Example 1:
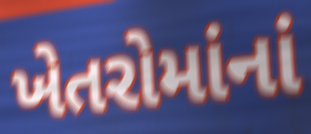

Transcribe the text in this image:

ખેતરોમાંનાં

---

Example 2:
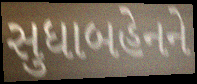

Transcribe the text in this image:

સુધાબહેનને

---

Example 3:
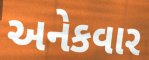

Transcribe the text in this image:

અનેકવાર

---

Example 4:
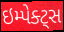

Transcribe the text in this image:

ઇમ્પેક્ટ્સ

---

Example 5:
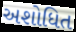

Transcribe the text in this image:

અશોધિત